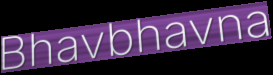
Bhavbhavna